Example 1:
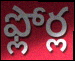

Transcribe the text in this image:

ఫ్లోర్ల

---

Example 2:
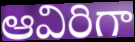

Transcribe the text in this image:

ఆవిరిగా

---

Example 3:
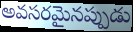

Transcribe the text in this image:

అవసరమైనప్పుడు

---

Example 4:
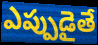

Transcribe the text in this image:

ఎప్పుడైతే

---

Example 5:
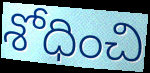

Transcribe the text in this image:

శోధించి